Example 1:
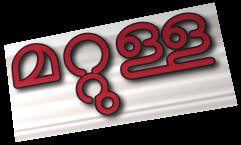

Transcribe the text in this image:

മറ്റുള്ള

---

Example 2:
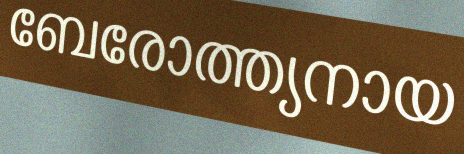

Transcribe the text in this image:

ബേരോത്ത്യനായ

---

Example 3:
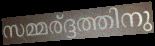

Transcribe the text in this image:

സമ്മര്ദ്ദത്തിനു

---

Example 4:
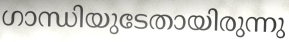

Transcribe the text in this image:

ഗാന്ധിയുടേതായിരുന്നു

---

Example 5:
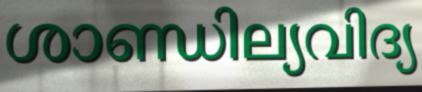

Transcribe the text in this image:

ശാണ്ഡില്യവിദ്യ